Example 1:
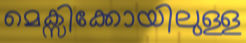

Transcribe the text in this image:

മെക്സിക്കോയിലുള്ള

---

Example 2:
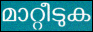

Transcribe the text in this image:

മാറ്റീടുക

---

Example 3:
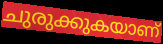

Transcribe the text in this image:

ചുരുക്കുകയാണ്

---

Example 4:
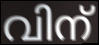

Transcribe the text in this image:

വിന്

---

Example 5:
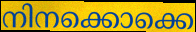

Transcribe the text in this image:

നിനക്കൊക്കെ